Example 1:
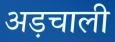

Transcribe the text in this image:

अड़चाली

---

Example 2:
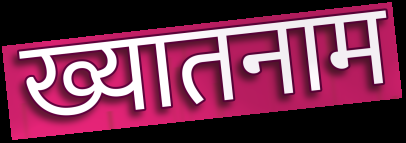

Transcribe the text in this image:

ख्यातनाम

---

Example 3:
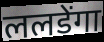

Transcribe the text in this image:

ललडेंगा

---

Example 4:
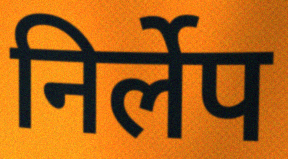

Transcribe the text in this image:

निर्लेप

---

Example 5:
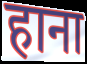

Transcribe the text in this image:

हाना